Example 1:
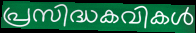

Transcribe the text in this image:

പ്രസിദ്ധകവികൾ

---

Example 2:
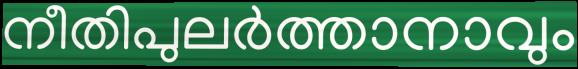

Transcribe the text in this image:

നീതിപുലർത്താനാവും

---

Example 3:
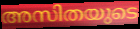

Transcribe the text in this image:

അസിതയുടെ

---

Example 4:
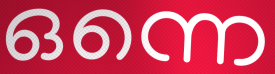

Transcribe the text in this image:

ഒന്നെ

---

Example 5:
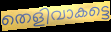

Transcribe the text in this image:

തെളിവാകട്ടെ